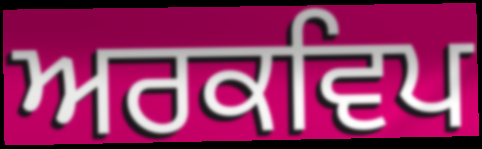
ਅਰਕਵਿਪ